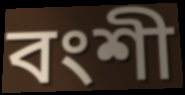
বংশী